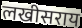
लखीसराय